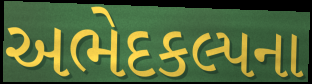
અભેદકલ્પના